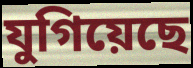
যুগিয়েছে